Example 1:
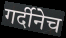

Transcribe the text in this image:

गर्दीनेच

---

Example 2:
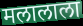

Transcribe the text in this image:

मलालाला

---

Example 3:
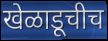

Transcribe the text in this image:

खेळाडूचीच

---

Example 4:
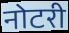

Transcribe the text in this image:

नोटरी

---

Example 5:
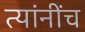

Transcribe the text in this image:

त्यांनींच